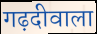
गढ़दीवाला